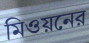
মিওয়নের